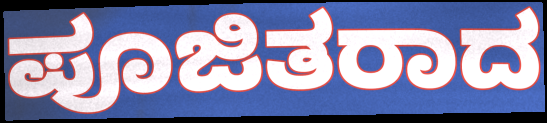
ಪೂಜಿತರಾದ